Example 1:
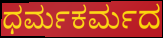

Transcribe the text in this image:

ಧರ್ಮಕರ್ಮದ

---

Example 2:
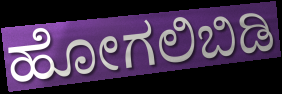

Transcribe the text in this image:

ಹೋಗಲಿಬಿಡಿ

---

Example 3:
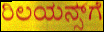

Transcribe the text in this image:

ರಿಲಯನ್ಸ್‌ಗೆ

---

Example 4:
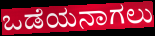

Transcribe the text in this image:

ಒಡೆಯನಾಗಲು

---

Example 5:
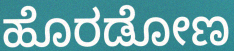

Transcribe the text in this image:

ಹೊರಡೋಣ